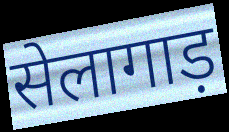
सेलागाड़